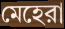
মেহেরা